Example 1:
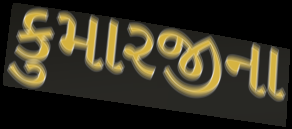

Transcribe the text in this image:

કુમારજીના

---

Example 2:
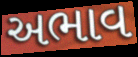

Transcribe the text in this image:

અભાવ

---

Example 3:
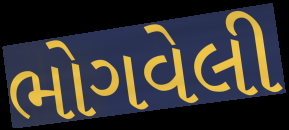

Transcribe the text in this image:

ભોગવેલી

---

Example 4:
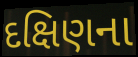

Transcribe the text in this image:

દક્ષિણના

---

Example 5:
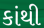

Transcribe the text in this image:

કાંથી